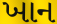
ખાન